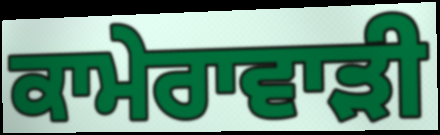
ਕਾਮੇਰਾਵਾੜੀ